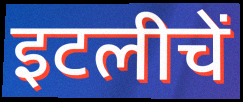
इटलीचें